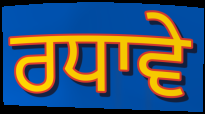
ਰਧਾਵੇ